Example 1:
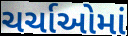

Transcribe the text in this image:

ચર્ચાઓમાં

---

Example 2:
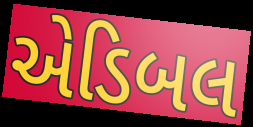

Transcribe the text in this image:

એડિબલ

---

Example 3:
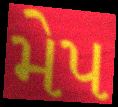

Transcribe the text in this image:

મેપ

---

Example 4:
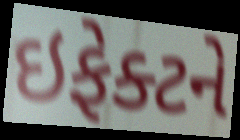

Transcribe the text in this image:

ઇફેક્ટને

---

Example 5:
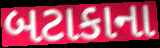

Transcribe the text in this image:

બટાકાના